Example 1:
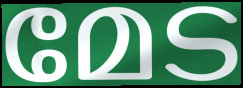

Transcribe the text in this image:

മേട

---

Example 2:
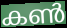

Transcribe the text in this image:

കൺ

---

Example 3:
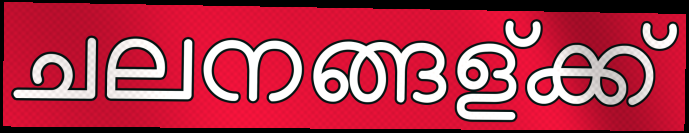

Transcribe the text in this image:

ചലനങ്ങള്ക്ക്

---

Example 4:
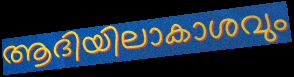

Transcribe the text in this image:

ആദിയിലാകാശവും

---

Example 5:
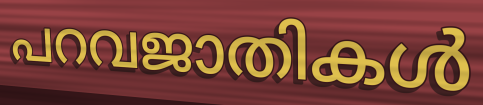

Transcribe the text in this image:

പറവജാതികൾ